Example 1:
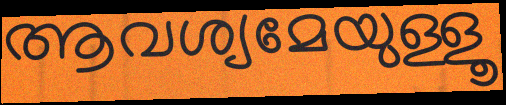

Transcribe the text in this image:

ആവശ്യമേയുള്ളൂ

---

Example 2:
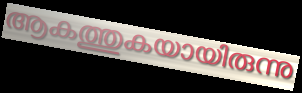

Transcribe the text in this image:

ആകത്തുകയായിരുന്നു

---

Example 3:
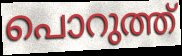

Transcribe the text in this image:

പൊറുത്ത്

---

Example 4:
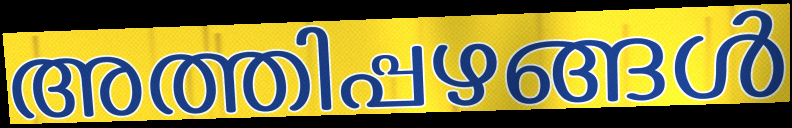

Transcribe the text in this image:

അത്തിപ്പഴങ്ങൾ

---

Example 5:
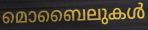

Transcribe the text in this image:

മൊബൈലുകൾ